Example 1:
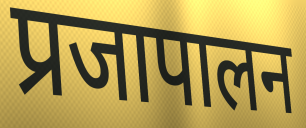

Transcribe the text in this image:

प्रजापालन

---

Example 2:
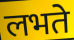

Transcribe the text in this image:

लभते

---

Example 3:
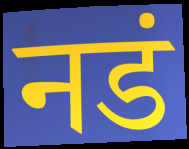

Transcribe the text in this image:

नडं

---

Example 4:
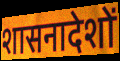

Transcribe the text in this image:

शासनादेशों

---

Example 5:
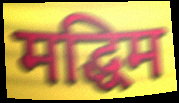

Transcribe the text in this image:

मद्धिम